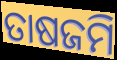
ତାଷଜମି